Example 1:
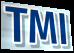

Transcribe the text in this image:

TMI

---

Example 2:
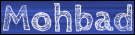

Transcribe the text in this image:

Mohbad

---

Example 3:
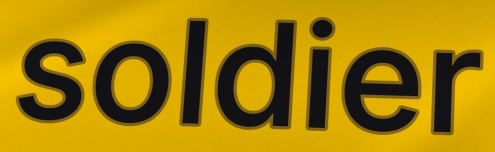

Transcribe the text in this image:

soldier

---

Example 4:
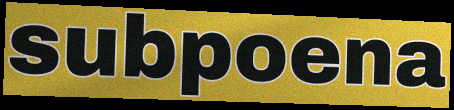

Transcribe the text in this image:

subpoena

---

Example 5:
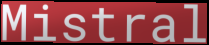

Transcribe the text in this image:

Mistral